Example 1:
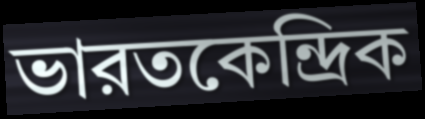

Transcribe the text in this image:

ভারতকেন্দ্রিক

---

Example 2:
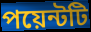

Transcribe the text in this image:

পয়েন্টটি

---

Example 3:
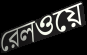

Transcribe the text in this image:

রেলওয়ে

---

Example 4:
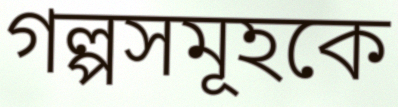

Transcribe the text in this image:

গল্পসমূহকে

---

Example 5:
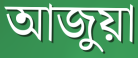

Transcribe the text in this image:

আজুয়া